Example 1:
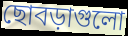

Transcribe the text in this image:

ছোবড়াগুলো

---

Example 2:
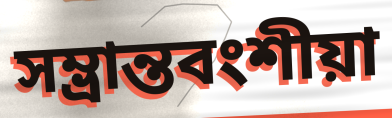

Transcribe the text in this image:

সম্ভ্রান্তবংশীয়া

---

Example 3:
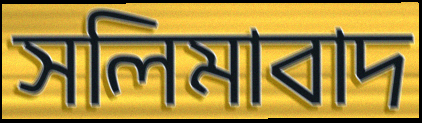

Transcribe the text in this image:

সলিমাবাদ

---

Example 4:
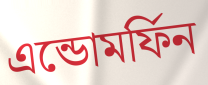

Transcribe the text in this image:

এন্ডোমর্ফিন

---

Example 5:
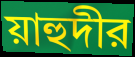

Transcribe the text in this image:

য়াহুদীর